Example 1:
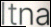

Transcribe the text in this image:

Itna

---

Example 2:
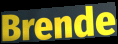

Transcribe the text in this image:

Brende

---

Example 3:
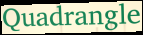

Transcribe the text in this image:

Quadrangle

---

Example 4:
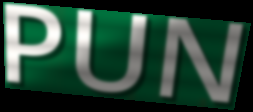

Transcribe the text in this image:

PUN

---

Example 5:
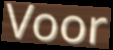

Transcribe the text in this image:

Voor